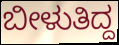
ಬೀಳುತಿದ್ದ